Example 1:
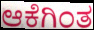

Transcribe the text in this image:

ಆಕೆಗಿಂತ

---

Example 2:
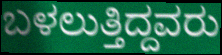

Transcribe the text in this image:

ಬಳಲುತ್ತಿದ್ದವರು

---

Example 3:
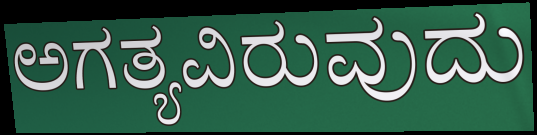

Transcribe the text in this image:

ಅಗತ್ಯವಿರುವುದು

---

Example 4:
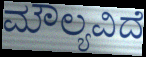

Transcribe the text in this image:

ಮೌಲ್ಯವಿದೆ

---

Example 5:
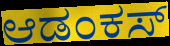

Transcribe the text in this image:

ಆಡಂಕಸ್